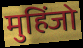
मुहिंजो